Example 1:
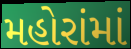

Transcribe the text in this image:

મહોરાંમાં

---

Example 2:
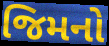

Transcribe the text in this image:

જિમનો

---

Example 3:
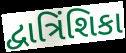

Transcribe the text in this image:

દ્વાત્રિંશિકા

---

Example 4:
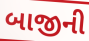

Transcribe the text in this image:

બાજીની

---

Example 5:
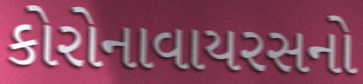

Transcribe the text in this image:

કોરોનાવાયરસનો